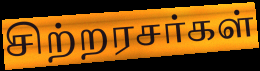
சிற்றரசர்கள்